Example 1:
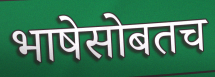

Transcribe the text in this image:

भाषेसोबतच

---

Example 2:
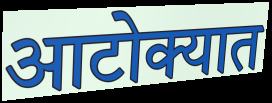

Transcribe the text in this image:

आटोक्‍यात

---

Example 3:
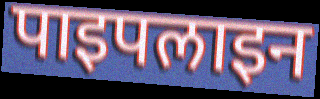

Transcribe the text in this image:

पाइपलाइन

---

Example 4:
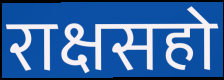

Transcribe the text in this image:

राक्षसहो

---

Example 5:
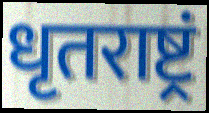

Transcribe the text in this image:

धृतराष्ट्रं